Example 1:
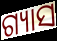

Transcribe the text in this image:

ଗ୍ୟାସ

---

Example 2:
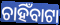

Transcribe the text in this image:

ଚାହିଁବାଟା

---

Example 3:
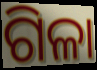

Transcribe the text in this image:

ଗିଳା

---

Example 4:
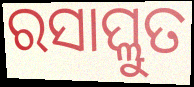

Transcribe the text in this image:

ରସାପ୍ଲୁତ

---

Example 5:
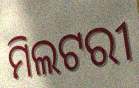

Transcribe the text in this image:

ମିଲଟରୀ